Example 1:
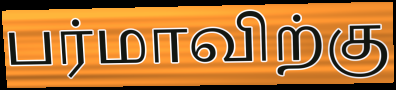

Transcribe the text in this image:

பர்மாவிற்கு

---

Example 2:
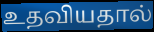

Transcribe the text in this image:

உதவியதால்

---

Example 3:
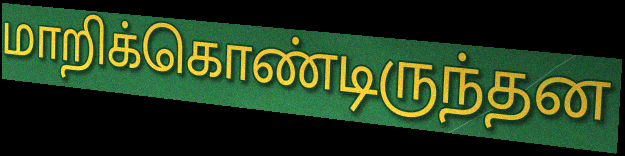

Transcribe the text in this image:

மாறிக்கொண்டிருந்தன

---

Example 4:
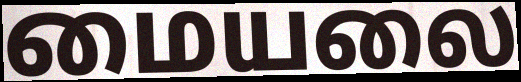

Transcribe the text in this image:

மையலை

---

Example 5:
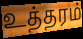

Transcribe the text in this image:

உத்தரம்